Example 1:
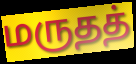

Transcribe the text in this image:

மருதத்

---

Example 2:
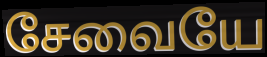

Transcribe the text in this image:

சேவையே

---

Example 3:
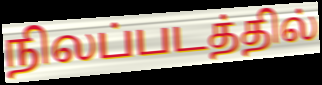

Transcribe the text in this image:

நிலப்படத்தில்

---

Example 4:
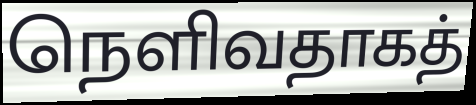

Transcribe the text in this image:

நெளிவதாகத்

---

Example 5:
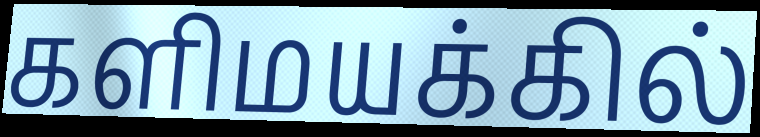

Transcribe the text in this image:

களிமயக்கில்